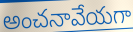
అంచనావేయగా